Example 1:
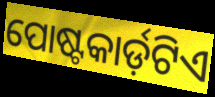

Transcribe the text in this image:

ପୋଷ୍ଟକାର୍ଡ଼ଟିଏ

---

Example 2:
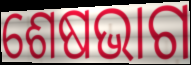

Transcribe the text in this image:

ଶେଷଭାଗ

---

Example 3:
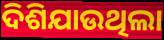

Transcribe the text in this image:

ଦିଶିଯାଉଥିଲା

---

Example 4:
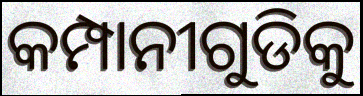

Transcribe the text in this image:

କମ୍ପାନୀଗୁଡିକୁ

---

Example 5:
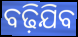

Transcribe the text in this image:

ବଢ଼ିଯିବ